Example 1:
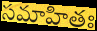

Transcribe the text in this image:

సమాహితః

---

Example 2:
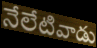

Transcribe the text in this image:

నేలేటివాడు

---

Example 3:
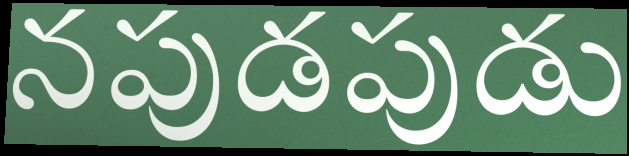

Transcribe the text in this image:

నపుడపుడు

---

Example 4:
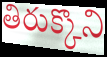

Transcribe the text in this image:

తిరుక్కొని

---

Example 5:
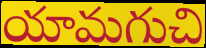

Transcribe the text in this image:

యామగుచి